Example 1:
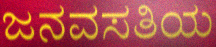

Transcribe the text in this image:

ಜನವಸತಿಯ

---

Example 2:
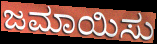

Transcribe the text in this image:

ಜಮಾಯಿಸು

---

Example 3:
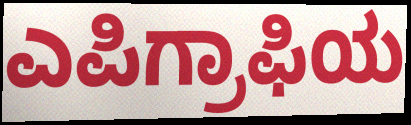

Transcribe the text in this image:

ಎಪಿಗ್ರಾಫಿಯ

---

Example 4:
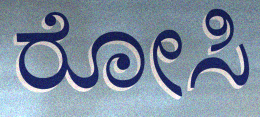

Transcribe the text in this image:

ರೋಸಿ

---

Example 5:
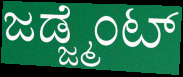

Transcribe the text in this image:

ಜಡ್ಜ್ಮೆಂಟ್